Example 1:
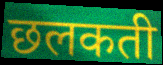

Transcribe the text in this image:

छलकती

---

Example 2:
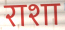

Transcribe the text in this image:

राशा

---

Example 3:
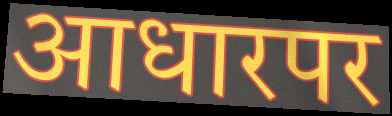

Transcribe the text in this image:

आधारपर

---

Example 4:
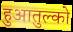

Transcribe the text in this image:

हुआतुल्को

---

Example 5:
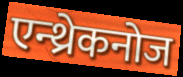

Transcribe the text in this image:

एन्थ्रेकनोज